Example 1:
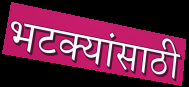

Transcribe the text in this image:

भटक्यांसाठी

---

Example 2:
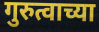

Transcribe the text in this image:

गुरुत्वाच्या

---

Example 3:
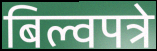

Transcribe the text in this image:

बिल्वपत्रे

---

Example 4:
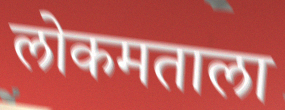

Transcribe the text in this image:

लोकमताला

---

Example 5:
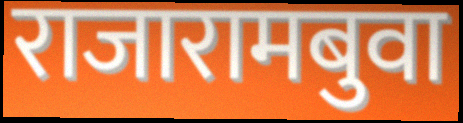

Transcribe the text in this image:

राजारामबुवा